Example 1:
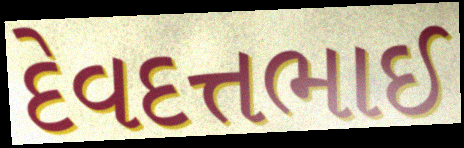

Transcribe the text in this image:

દેવદત્તભાઈ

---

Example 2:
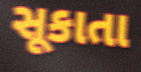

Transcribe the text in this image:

સૂકાતા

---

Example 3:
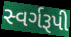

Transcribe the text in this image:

સ્વર્ગરૂપી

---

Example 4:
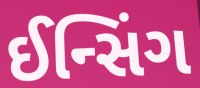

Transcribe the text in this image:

ઈન્સિંગ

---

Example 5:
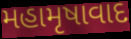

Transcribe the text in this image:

મહામૃષાવાદ